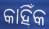
କାହିଁକ